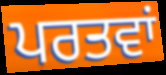
ਪਰਤਵਾਂ